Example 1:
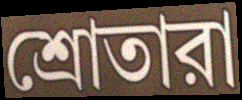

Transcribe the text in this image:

শ্রোতারা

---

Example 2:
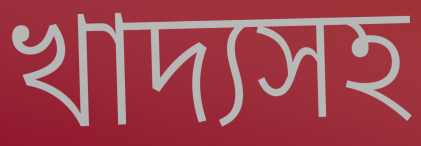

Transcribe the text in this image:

খাদ্যসহ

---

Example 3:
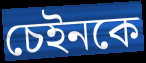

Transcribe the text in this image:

চেইনকে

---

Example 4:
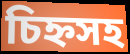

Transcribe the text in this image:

চিহ্নসহ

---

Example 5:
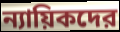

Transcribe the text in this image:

ন্যায়িকদের